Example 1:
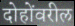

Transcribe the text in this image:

दोहोंवरील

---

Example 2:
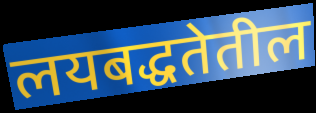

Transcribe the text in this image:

लयबद्धतेतील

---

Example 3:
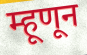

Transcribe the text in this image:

म्हूणून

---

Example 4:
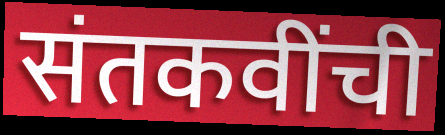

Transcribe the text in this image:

संतकवींची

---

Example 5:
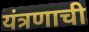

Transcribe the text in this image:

यंत्रणाची